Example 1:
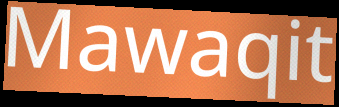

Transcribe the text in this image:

Mawaqit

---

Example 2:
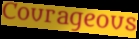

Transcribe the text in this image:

Courageous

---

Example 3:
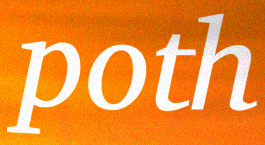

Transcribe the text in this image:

poth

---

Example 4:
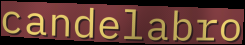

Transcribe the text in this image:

candelabro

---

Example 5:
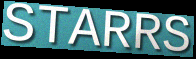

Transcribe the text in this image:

STARRS